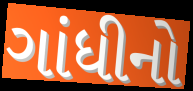
ગાંધીનો